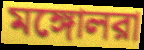
মঙ্গোলরা